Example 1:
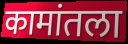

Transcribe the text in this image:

कामांतला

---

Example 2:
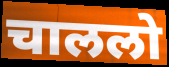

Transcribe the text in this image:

चाललो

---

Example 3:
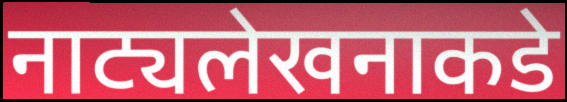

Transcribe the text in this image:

नाट्यलेखनाकडे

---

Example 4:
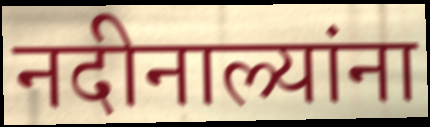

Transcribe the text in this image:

नदीनाल्यांना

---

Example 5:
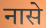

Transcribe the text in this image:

नासे